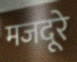
मजदूरे